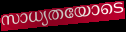
സാധ്യതയോടെ